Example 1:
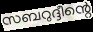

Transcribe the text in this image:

സബറുദ്ദീന്റെ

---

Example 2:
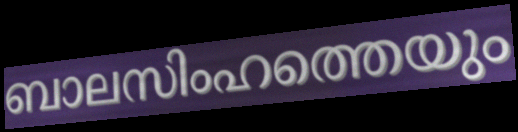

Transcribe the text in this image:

ബാലസിംഹത്തെയും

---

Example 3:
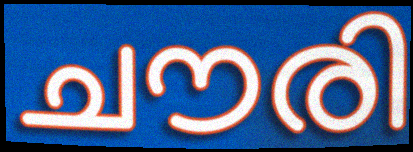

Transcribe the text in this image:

ചൗരി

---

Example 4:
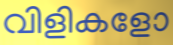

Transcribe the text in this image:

വിളികളോ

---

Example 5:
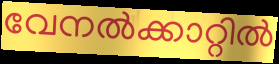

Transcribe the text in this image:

വേനൽക്കാറ്റിൽ